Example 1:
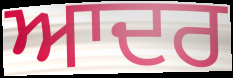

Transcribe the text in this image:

ਆਦਰ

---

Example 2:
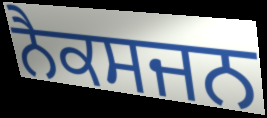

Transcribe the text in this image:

ਨੈਕਸਜਨ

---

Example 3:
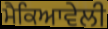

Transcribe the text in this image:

ਮੈਕਿਆਵੇਲੀ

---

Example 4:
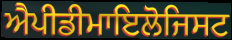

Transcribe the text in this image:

ਐਪੀਡੀਮਾਇਲੋਜਿਸਟ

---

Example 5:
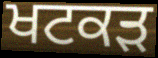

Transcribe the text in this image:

ਖਟਕੜ